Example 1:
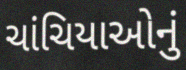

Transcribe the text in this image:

ચાંચિયાઓનું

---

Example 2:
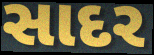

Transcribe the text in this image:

સાદર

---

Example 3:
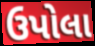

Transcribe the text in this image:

ઉપોલા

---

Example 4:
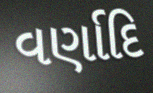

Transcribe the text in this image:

વર્ણાદિ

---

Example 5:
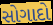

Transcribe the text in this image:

સોગાદો